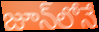
జూన్‌లోనే